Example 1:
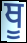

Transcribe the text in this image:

ਥੂ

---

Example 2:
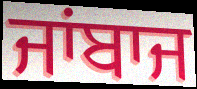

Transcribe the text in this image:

ਜਾਂਬਾਜ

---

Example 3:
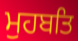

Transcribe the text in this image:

ਮੁਹਬਤਿ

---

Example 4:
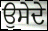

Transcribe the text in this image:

ਉਸੇਦੇ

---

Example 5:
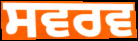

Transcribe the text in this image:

ਸਵਰਵ